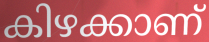
കിഴക്കാണ്